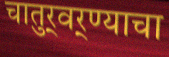
चातुर्वर्ण्याचा